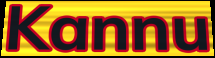
Kannu